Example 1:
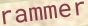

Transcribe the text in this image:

rammer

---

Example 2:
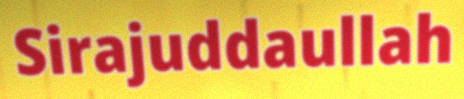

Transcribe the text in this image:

Sirajuddaullah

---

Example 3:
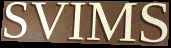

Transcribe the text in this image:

SVIMS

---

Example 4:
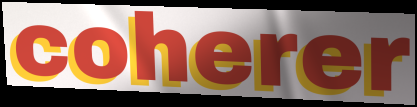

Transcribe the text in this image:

coherer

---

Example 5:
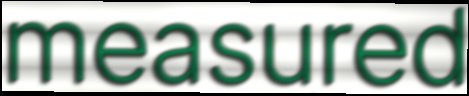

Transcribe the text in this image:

measured